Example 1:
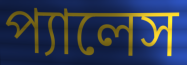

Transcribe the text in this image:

প্যালেস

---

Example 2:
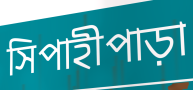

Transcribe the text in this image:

সিপাহীপাড়া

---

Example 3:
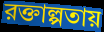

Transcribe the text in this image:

রক্তাল্পতায়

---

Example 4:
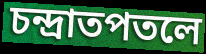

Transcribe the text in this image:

চন্দ্রাতপতলে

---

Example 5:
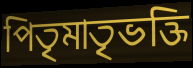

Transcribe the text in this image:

পিতৃমাতৃভক্তি